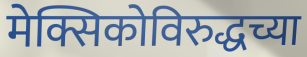
मेक्सिकोविरुद्धच्या